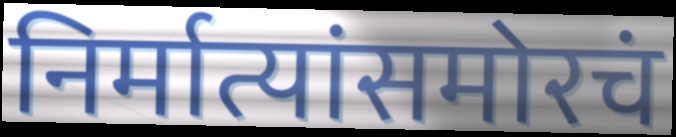
निर्मात्यांसमोरचं